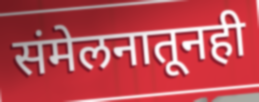
संमेलनातूनही